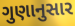
ગુણાનુસાર